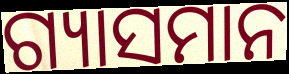
ଗ୍ୟାସମାନ